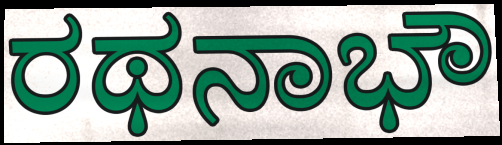
ರಥನಾಭೌ